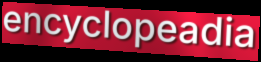
encyclopeadia